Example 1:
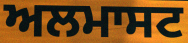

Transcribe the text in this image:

ਅਲਮਾਸਟ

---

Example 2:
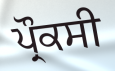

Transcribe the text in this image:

ਪ੍ਰੌਕਸੀ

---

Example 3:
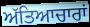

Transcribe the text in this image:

ਅੱਤਿਆਚਾਰਾਂ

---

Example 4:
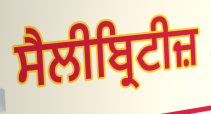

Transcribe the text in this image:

ਸੈਲੀਬ੍ਰਿਟੀਜ਼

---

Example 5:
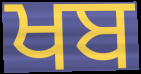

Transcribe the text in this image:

ਖਬ